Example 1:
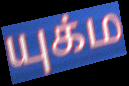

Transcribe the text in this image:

யுக்ம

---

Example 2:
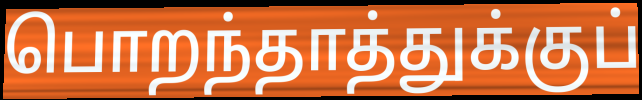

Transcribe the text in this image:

பொறந்தாத்துக்குப்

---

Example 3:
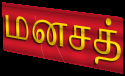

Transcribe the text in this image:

மனசத்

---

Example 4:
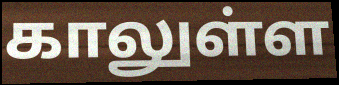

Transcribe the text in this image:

காலுள்ள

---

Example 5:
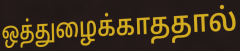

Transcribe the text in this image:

ஒத்துழைக்காததால்